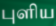
புளிய